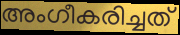
അംഗീകരിച്ചത്